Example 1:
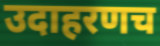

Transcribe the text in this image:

उदाहरणच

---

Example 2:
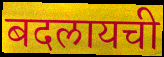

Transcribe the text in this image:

बदलायची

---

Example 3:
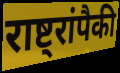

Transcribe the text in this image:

राष्ट्रांपैकी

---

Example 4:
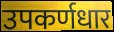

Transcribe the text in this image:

उपकर्णधार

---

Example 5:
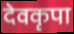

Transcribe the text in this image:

देवकृपा